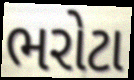
ભરોટા